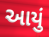
આયું